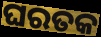
ଘରତକ